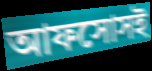
আফসোসই